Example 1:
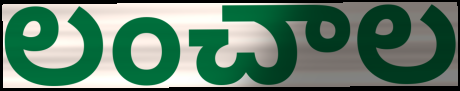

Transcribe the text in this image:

లంచాల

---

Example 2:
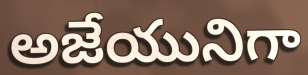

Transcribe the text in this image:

అజేయునిగా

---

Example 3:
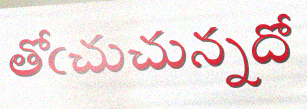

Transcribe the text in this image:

తోఁచుచున్నదో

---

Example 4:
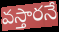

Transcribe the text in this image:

వస్తారనే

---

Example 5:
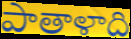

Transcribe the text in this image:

పాతాళాది